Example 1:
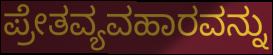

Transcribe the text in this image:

ಪ್ರೇತವ್ಯವಹಾರವನ್ನು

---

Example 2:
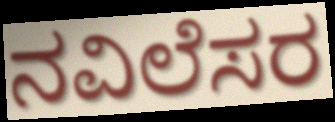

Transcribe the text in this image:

ನವಿಲೆಸರ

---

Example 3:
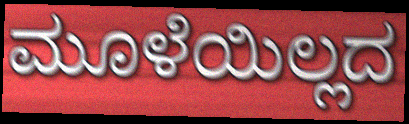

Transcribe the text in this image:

ಮೂಳೆಯಿಲ್ಲದ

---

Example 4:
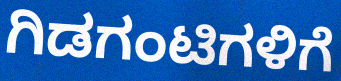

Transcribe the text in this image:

ಗಿಡಗಂಟಿಗಳಿಗೆ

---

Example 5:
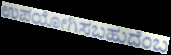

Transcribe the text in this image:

ಉಪಯೋಗಿಸಬಹುದೆಂಬ